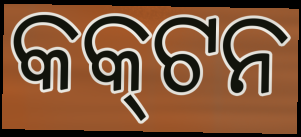
କକ୍‌ଟନ